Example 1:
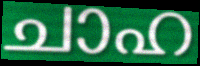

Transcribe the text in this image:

ചാഹ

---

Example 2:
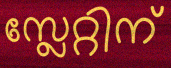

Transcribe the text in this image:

സ്ലേറ്റിന്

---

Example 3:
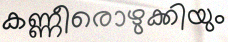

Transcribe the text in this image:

കണ്ണീരൊഴുക്കിയും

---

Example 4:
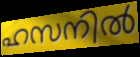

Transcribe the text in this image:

ഹസനിൽ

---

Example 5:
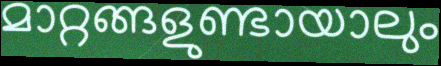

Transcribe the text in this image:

മാറ്റങ്ങളുണ്ടായാലും